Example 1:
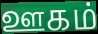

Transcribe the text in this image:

ஊகம்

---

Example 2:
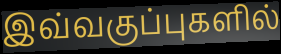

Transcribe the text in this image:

இவ்வகுப்புகளில்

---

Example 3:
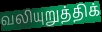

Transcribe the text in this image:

வலியுறுத்திக்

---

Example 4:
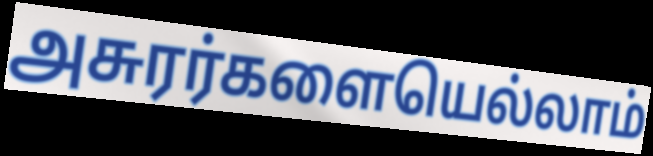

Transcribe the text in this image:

அசுரர்களையெல்லாம்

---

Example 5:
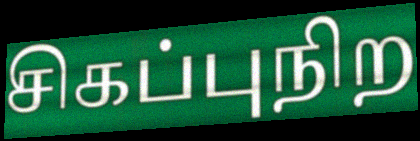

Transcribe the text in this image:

சிகப்புநிற